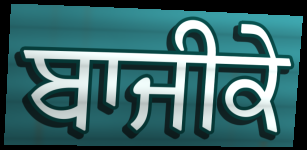
ਬਾਜੀਕੇ